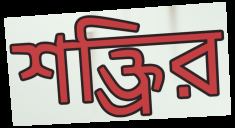
শক্ত্রির